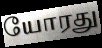
யோரது